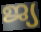
ജ്യ